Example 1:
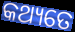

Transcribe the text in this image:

କଥ୍ୟତେ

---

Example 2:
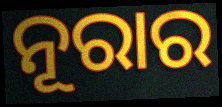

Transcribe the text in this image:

ନୂରାର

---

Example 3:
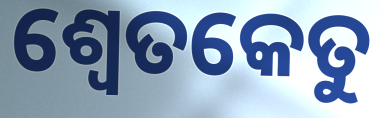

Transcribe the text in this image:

ଶ୍ୱେତକେତୁ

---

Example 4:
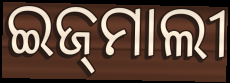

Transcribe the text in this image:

ଇଜ୍‌ମାଲୀ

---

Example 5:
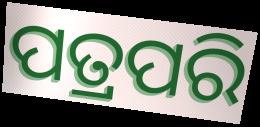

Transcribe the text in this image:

ପତ୍ରପରି